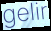
gelir